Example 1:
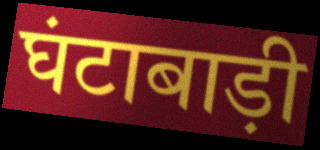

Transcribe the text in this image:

घंटाबाड़ी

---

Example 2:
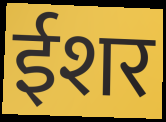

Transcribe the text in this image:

ईशर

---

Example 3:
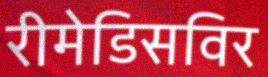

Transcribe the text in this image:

रीमेडिसविर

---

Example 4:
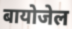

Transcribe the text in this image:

बायोजेल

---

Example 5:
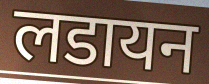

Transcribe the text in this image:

लडायन